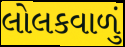
લોલકવાળું